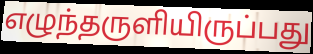
எழுந்தருளியிருப்பது